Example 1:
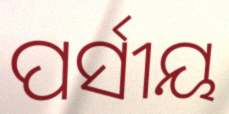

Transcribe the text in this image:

ପର୍ସୀୟ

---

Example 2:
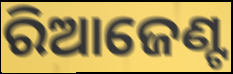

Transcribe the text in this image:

ରିଆଜେଣ୍ଟ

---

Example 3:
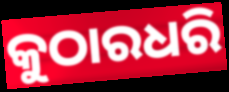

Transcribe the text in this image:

କୁଠାରଧରି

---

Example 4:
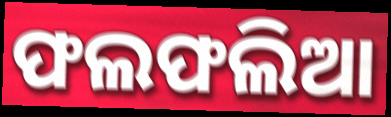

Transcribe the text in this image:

ଫଲଫଲିଆ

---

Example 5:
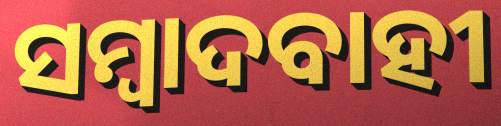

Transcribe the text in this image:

ସମ୍ବାଦବାହୀ